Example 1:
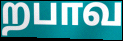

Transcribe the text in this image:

றபாவ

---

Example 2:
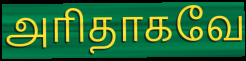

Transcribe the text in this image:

அரிதாகவே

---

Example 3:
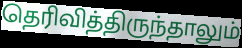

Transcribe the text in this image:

தெரிவித்திருந்தாலும்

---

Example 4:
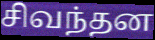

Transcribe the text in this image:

சிவந்தன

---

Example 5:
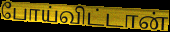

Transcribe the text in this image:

போய்விட்டான்